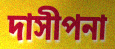
দাসীপনা